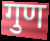
गुण